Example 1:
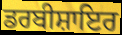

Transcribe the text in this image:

ਡਰਬੀਸ਼ਾਇਰ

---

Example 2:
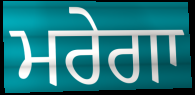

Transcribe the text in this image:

ਮਰੇਗਾ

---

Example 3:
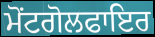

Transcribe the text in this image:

ਮੋਂਟਗੋਲਫਾਇਰ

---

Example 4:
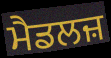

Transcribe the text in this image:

ਮੈਡਲਜ਼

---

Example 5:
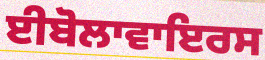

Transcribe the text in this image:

ਈਬੋਲਾਵਾਇਰਸ